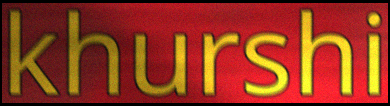
khurshi